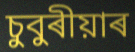
চুবুৰীয়াৰ